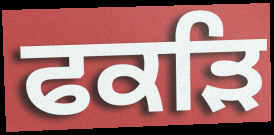
ਫਕੜਿ